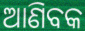
ଆଣିବକ